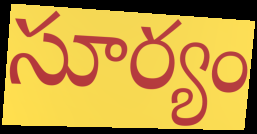
సూర్యం